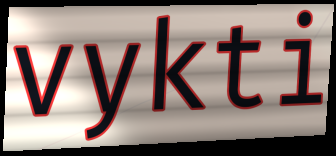
vykti